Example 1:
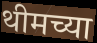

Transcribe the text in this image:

थीमच्या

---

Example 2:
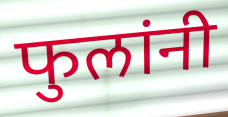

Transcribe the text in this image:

फुलांनी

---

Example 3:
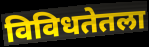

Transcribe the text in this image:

विविधतेतला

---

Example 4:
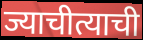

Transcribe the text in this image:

ज्याचीत्याची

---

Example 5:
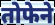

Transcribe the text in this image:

तोफेने